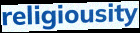
religiousity